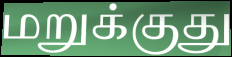
மறுக்குது